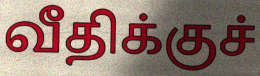
வீதிக்குச்